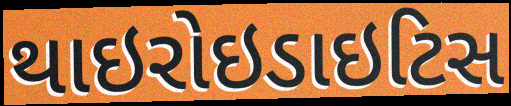
થાઇરોઇડાઇટિસ